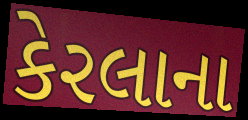
કેરલાના